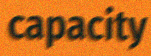
capacity